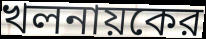
খলনায়কের